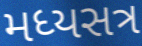
મધ્યસત્ર